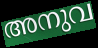
അനുവ